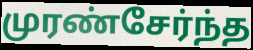
முரண்சேர்ந்த